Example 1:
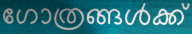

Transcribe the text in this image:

ഗോത്രങ്ങൾക്ക്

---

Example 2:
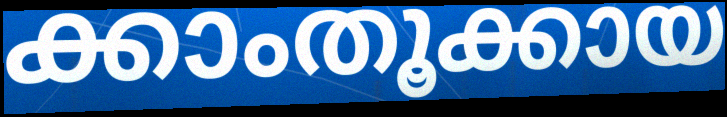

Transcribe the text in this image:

ക്കാംതൂക്കായ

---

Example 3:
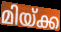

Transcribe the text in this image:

മിയ്ക്ക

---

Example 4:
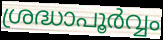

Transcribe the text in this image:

ശ്രദ്ധാപൂർവ്വം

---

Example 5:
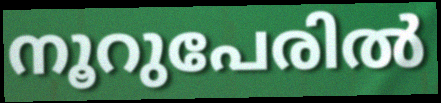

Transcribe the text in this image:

നൂറുപേരിൽ